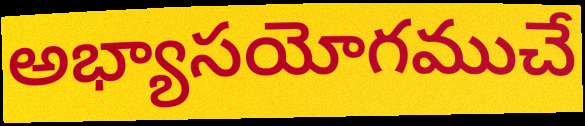
అభ్యాసయోగముచే